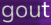
gout